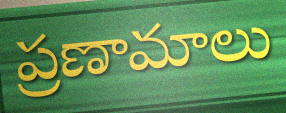
ప్రణామాలు